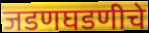
जडणघडणीचे